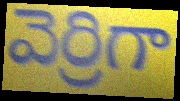
వెర్రిగా